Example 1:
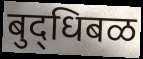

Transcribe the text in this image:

बुद्धिबळ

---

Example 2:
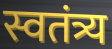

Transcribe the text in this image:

स्वतंत्र्य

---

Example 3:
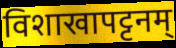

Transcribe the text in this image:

विशाखापट्टनम्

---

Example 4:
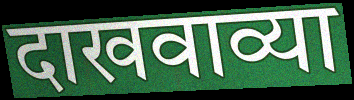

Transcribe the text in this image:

दाखवाव्या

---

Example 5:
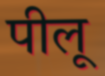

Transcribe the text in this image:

पीलू